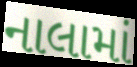
નાલામાં